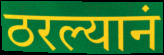
ठरल्यानं